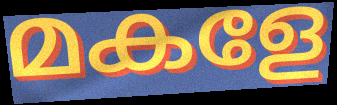
മകളേ